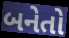
બનેતો